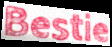
Bestie